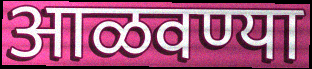
आळवण्या